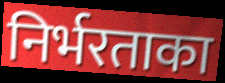
निर्भरताका